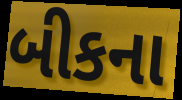
બીકના